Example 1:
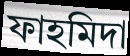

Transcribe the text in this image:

ফাহমিদা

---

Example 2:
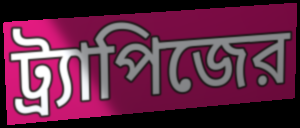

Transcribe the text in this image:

ট্র্যাপিজের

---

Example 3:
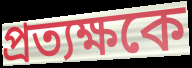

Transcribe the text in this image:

প্রত্যক্ষকে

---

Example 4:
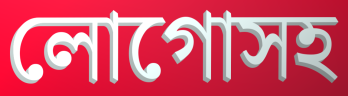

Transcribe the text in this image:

লোগোসহ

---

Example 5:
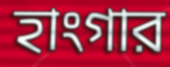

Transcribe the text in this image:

হাংগার